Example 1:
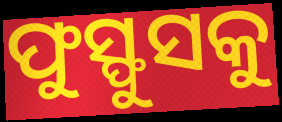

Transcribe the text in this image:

ଫୁସ୍ଫୁସକୁ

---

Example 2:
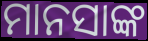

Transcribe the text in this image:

ମାନସାଙ୍କ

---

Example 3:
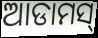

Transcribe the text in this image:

ଆଡାମସ୍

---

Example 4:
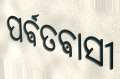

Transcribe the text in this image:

ପର୍ଵତଵାସୀ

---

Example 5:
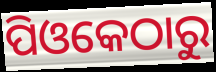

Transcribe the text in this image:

ପିଓକେଠାରୁ